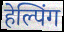
हेल्पिंग